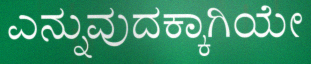
ಎನ್ನುವುದಕ್ಕಾಗಿಯೇ